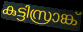
കുട്ടിസ്രാങ്ക്